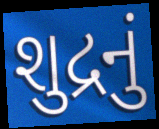
શુદ્રનું